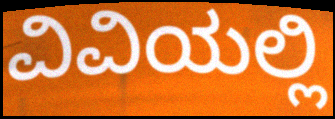
ವಿವಿಯಲ್ಲಿ